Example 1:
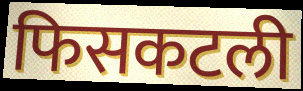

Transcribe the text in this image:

फिसकटली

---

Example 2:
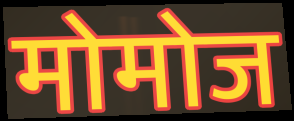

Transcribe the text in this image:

मोमोज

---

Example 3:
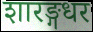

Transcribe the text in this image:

शारङ्गधर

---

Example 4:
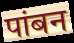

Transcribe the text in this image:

पांबन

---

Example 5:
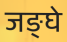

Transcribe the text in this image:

जङ्घे